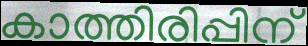
കാത്തിരിപ്പിന്